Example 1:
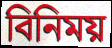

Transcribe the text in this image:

বিনিময়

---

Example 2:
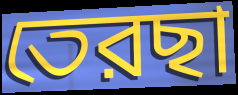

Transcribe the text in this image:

তেরছা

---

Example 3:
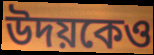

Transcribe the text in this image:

উদয়কেও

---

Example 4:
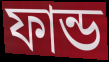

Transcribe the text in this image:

ফান্ড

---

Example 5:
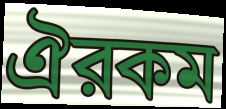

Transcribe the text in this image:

ঐরকম